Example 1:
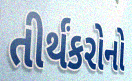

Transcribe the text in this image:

તીર્થંકરોનો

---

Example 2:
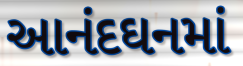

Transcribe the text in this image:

આનંદઘનમાં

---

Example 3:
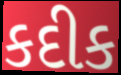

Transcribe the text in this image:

કદીક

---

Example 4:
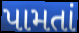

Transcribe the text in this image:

પામતાં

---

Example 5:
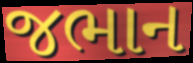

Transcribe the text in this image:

જભાન